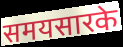
समयसारके